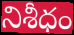
నిశీధం